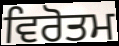
ਵਿਰੋਤਮ